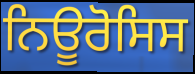
ਨਿਊਰੋਸਿਸ